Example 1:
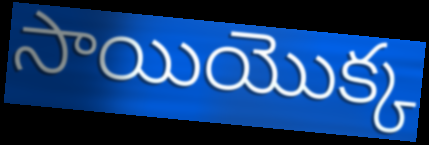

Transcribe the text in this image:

సాయియొక్క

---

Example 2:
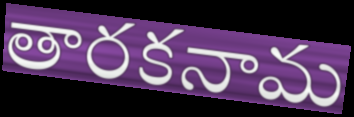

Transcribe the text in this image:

తారకనామ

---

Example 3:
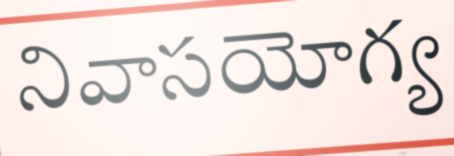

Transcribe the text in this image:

నివాసయోగ్య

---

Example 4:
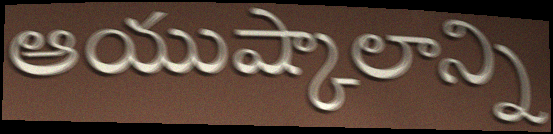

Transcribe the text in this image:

ఆయుష్కాలాన్ని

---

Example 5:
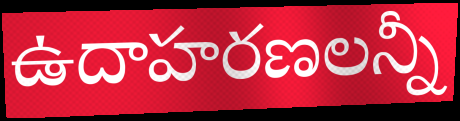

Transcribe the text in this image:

ఉదాహరణలన్నీ